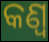
କଣ୍ୱ